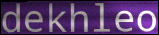
dekhleo